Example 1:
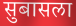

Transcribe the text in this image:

सुबासला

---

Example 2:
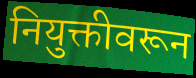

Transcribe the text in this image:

नियुक्तीवरून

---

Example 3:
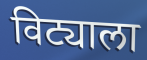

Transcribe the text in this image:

विट्याला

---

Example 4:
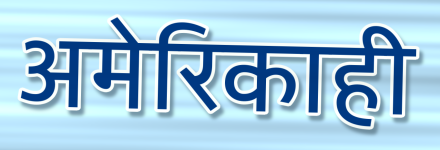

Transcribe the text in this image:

अमेरिकाही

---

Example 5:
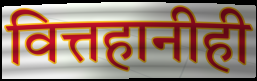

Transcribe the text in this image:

वित्तहानीही